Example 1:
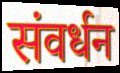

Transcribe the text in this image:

संवर्धन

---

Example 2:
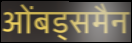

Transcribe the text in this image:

ओंबड्समैन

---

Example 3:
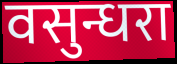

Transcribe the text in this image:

वसुन्धरा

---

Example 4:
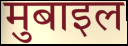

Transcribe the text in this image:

मुबाइल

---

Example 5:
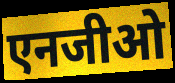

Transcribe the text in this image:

एनजीओ